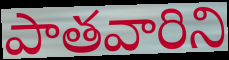
పాతవారిని